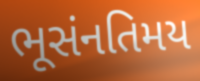
ભૂસંનતિમય